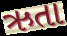
ઋતા